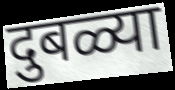
दुबळ्या